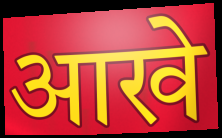
आखे